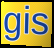
gis